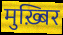
मुख़्बिर